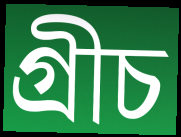
গ্ৰীচ